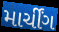
માર્ચીંગ